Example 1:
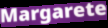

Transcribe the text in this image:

Margarete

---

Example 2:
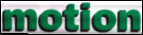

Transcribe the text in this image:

motion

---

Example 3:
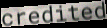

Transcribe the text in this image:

credited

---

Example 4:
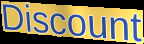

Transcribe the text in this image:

Discount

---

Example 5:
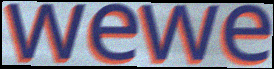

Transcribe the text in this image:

wewe